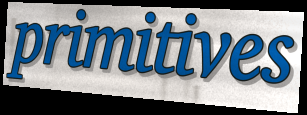
primitives